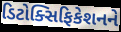
ડિટોક્સિફિકેશનને